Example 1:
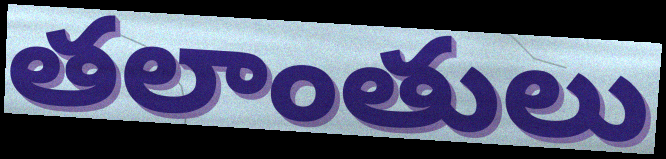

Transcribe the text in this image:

తలాంతులు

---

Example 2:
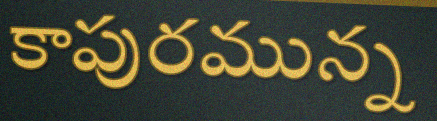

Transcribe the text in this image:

కాపురమున్న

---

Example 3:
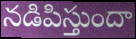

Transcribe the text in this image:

నడిపిస్తుందా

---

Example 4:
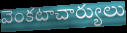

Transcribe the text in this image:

వెంకటాచార్యులు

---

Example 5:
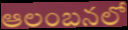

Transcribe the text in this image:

ఆలంబనలో